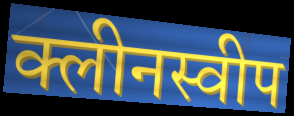
क्लीनस्वीप